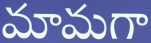
మామగా